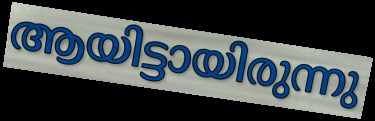
ആയിട്ടായിരുന്നു